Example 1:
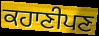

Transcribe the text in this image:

ਕਹਾਣੀਪਣ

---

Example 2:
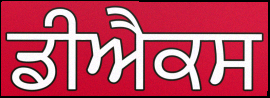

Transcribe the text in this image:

ਡੀਐਕਸ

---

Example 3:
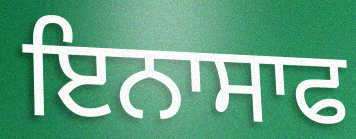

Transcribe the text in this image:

ਇਨਾਸਾਫ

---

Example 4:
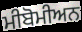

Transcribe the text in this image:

ਮੀਬੋਮੀਅਨ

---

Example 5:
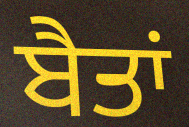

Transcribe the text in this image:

ਬੈਤਾਂ